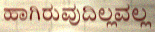
ಹಾಗಿರುವುದಿಲ್ಲವಲ್ಲ